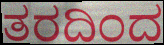
ತರದಿಂದ